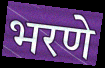
भरणे